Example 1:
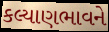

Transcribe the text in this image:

કલ્યાણભાવને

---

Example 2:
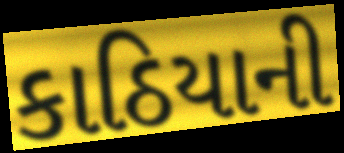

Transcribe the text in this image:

કાઠિયાની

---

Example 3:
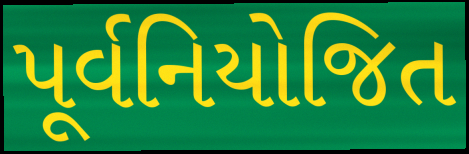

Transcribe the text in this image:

પૂર્વનિયોજિત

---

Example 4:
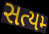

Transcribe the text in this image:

સત્યમ્‍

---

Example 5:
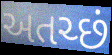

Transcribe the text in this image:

અતચ્છં